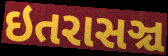
ઇતરાસઞ્ચ